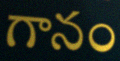
గానం